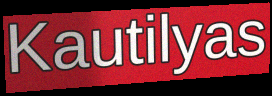
Kautilyas